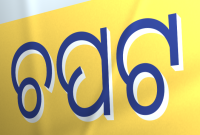
ଚପଟ